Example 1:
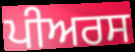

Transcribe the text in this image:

ਪੀਅਰਸ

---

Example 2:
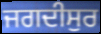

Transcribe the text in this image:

ਜਗਦੀਸੁਰ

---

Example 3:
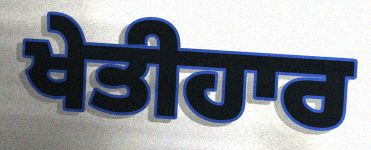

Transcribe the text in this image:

ਖੇਤੀਹਾਰ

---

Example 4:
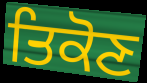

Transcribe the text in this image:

ਤਿਕੋਣ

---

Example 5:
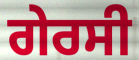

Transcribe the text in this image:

ਗੇਰਸੀ